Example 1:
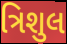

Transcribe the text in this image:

ત્રિશુલ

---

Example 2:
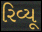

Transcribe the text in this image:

રિવ્યૂ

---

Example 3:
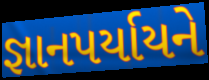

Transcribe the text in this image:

જ્ઞાનપર્યાયને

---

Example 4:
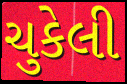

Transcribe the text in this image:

ચુકેલી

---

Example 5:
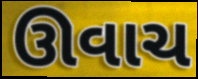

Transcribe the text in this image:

ઊવાચ